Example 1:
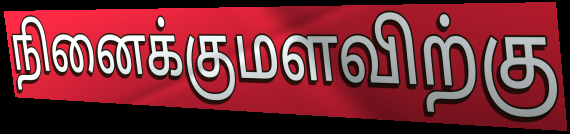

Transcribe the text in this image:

நினைக்குமளவிற்கு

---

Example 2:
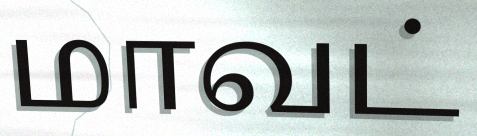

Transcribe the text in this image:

மாவட்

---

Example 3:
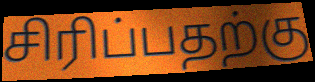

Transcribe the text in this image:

சிரிப்பதற்கு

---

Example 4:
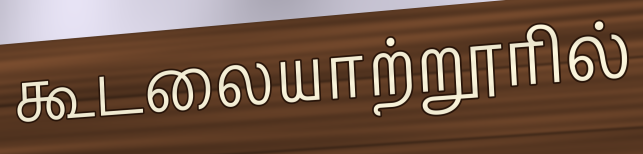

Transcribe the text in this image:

கூடலையாற்றூரில்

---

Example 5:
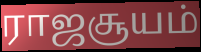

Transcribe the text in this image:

ராஜசூயம்